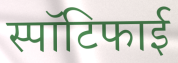
स्पॉटिफाई